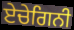
ਏਚੇਗਿਨੀ